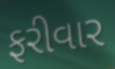
ફરીવાર